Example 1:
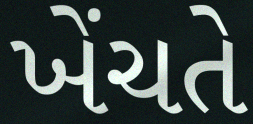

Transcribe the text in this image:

ખેંચતે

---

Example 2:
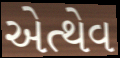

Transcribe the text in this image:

એત્થેવ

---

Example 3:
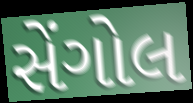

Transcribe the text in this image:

સેંગોલ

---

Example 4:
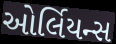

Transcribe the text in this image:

ઓર્લિયન્સ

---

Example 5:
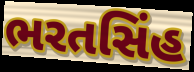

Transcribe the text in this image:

ભરતસિંહ